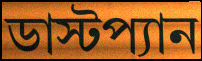
ডাস্টপ্যান